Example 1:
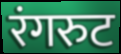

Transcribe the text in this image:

रंगरुट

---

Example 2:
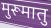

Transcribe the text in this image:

मुरूमातु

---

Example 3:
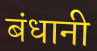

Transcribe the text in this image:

बंधानी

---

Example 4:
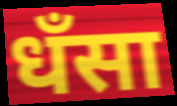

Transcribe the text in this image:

धँसा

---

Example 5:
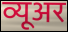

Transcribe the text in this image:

व्यूअर